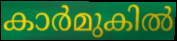
കാർമുകിൽ